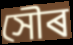
সৌৰ